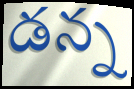
డన్న